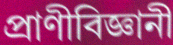
প্রাণীবিজ্ঞানী